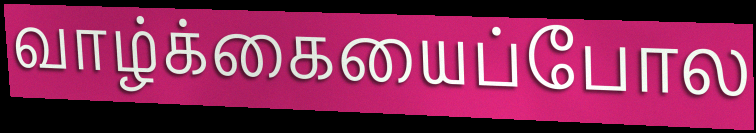
வாழ்க்கையைப்போல